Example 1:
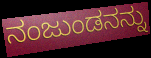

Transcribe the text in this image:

ನಂಜುಂಡನನ್ನು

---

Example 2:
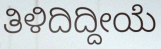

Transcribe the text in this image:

ತಿಳಿದಿದ್ದೀಯೆ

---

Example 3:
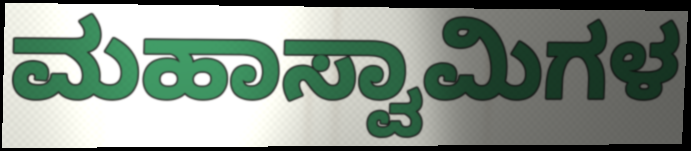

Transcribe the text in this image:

ಮಹಾಸ್ವಾಮಿಗಳ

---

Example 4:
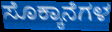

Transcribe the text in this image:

ಸೊಕ್ಕಾನೆಗಳ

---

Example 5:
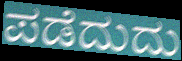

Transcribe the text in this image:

ಪಡೆದುದು